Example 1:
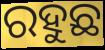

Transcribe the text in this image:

ରହୁଛ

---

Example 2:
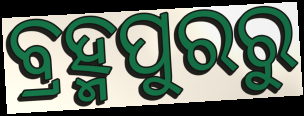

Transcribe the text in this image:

ବ୍ରହ୍ମପୁରରୁ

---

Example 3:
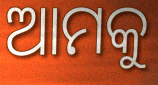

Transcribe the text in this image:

ଆମକୁ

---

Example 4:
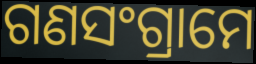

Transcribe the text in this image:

ଗଣସଂଗ୍ରାମେ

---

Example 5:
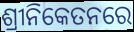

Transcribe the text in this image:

ଶ୍ରୀନିକେତନରେ